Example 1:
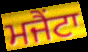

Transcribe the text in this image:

ਮਜੈਂਟਾ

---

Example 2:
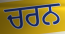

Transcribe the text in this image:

ਚਰਨ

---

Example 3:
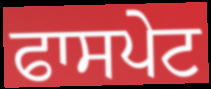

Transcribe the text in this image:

ਫਾਸਪੇਟ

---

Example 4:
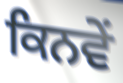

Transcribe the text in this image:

ਕਿਨਵੇਂ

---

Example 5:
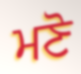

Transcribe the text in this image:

ਮਣੋ